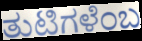
ತುಟಿಗಳೆಂಬ